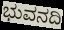
ಭುವನದಿ